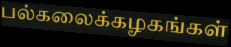
பல்கலைக்கழகங்கள்